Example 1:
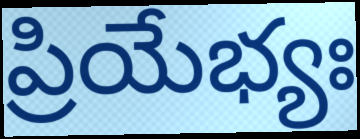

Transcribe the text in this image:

ప్రియేభ్యః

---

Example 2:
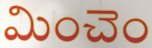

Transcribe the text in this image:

మించెం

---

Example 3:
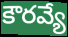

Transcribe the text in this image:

కౌరవ్యే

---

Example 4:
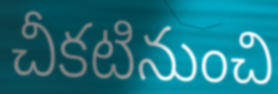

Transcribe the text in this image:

చీకటినుంచి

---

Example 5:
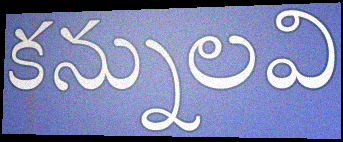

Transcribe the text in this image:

కన్నులవి